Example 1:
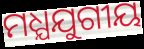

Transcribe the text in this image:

ମଧ୍ଯଯୁଗୀୟ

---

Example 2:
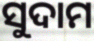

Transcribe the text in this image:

ସୁଦାମ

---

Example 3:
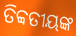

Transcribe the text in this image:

ତିବ୍ବତୀୟଙ୍କ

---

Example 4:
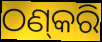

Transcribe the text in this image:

ଠଣ୍‌କରି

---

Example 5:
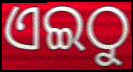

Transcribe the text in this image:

ଏଇଠୁ